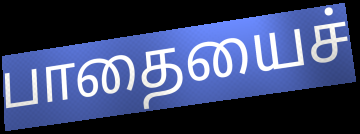
பாதையைச்